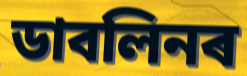
ডাবলিনৰ